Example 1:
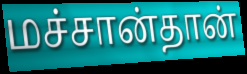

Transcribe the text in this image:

மச்சான்தான்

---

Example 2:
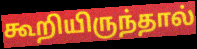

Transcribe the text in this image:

கூறியிருந்தால்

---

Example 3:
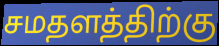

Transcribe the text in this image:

சமதளத்திற்கு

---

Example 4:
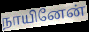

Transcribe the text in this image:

நாயினேன்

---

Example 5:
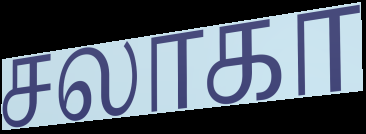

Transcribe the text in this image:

சலாகா